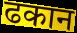
ढकान